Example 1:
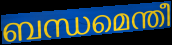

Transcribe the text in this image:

ബന്ധമെന്തീ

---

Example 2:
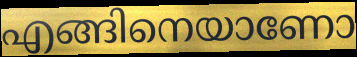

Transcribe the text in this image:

എങ്ങിനെയാണോ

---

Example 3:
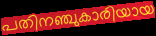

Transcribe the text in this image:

പതിനഞ്ചുകാരിയായ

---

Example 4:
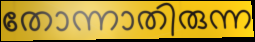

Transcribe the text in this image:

തോന്നാതിരുന്ന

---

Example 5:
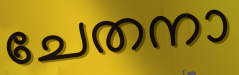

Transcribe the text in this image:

ചേതനാ